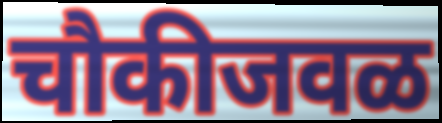
चौकीजवळ